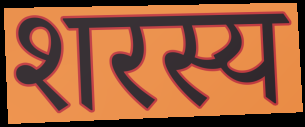
शरस्य